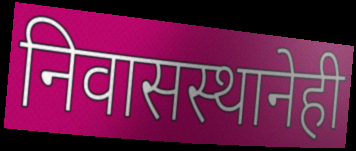
निवासस्थानेही